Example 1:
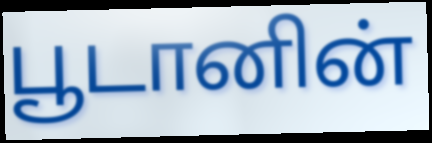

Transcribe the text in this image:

பூடானின்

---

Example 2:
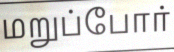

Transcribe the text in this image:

மறுப்போர்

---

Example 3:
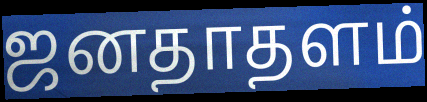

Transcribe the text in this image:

ஜனதாதளம்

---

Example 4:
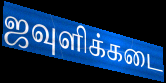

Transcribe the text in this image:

ஜவுளிக்கடை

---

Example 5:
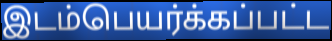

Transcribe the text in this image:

இடம்பெயர்க்கப்பட்ட